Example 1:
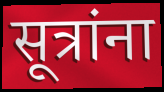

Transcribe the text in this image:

सूत्रांना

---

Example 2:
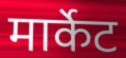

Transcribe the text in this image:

मार्केट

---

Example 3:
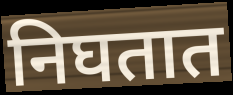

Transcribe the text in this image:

निघतात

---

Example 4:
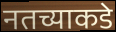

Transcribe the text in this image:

नतच्याकडे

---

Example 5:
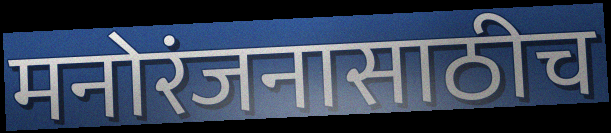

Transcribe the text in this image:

मनोरंजनासाठीच